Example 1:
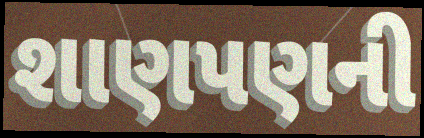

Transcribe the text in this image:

શાણપણની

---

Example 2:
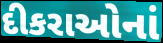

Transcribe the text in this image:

દીકરાઓનાં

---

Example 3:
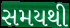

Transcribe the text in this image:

સમયથી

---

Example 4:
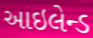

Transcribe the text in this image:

આઇલેન્ડ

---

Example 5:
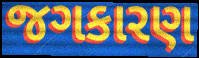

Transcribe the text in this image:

જગકારણ